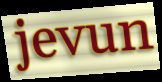
jevun